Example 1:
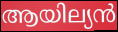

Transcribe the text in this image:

ആയില്യൻ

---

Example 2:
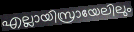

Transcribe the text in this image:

എല്ലായിസ്രായേലിലും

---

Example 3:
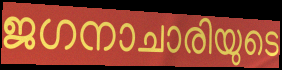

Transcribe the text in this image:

ജഗനാചാരിയുടെ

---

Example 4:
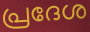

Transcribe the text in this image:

പ്രദേശ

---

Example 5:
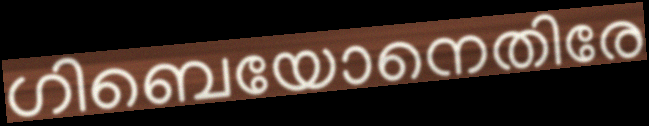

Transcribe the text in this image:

ഗിബെയോനെതിരേ